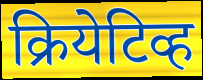
क्रियेटिव्ह